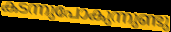
കടന്നുപോകുന്നുണ്ടു